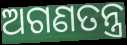
ଅଗଣତନ୍ତ୍ର